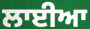
ਲਾਈਆ